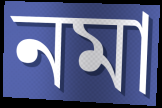
নমা